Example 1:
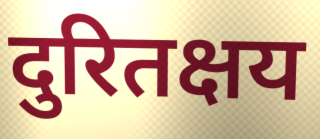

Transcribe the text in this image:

दुरितक्षय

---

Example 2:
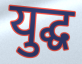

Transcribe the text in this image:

युद्घ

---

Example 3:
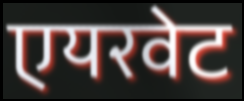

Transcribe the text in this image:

एयरवेट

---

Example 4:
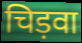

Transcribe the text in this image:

चिड़वा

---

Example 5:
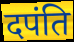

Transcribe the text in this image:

दपंति